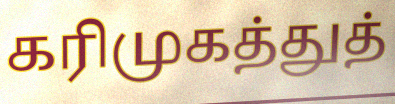
கரிமுகத்துத்